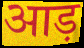
आड़